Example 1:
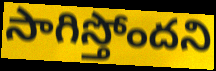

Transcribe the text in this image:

సాగిస్తోందని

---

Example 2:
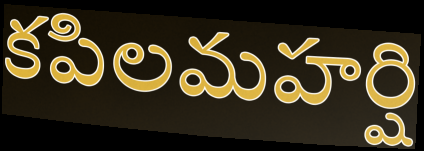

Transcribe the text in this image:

కపిలమహర్షి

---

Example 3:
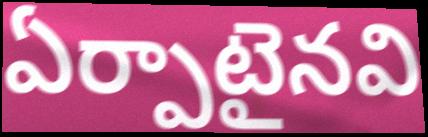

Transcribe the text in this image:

ఏర్పాటైనవి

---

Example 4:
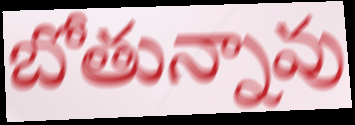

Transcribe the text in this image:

బోతున్నావు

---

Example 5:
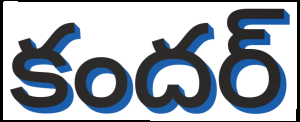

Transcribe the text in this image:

కందర్